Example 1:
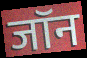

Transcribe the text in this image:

जॉन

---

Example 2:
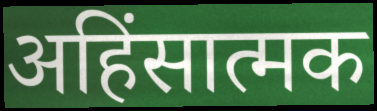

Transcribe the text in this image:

अहिंसात्मक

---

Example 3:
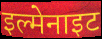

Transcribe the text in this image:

इल्मेनाइट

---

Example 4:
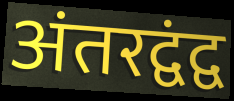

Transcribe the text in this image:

अंतरद्वंद्व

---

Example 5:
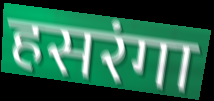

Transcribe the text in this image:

हसरंगा